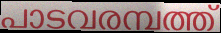
പാടവരമ്പത്ത്